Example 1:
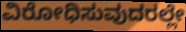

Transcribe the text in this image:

ವಿರೋಧಿಸುವುದರಲ್ಲೇ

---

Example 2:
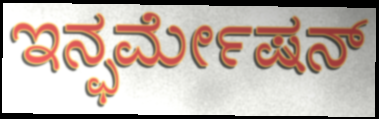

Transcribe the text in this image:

ಇನ್ಫರ್ಮೇಷನ್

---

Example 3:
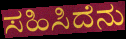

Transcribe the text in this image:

ಸಹಿಸಿದೆನು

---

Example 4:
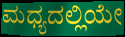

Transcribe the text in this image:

ಮಧ್ಯದಲ್ಲಿಯೇ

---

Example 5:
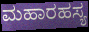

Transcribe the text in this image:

ಮಹಾರಹಸ್ಯ